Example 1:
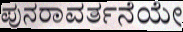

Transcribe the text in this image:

ಪುನರಾವರ್ತನೆಯೇ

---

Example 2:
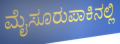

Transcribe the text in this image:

ಮೈಸೂರುಪಾಕಿನಲ್ಲಿ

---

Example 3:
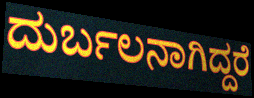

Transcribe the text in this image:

ದುರ್ಬಲನಾಗಿದ್ದರೆ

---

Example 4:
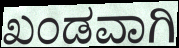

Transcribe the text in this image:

ಖಂಡವಾಗಿ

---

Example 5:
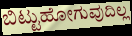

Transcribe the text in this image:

ಬಿಟ್ಟುಹೋಗುವುದಿಲ್ಲ